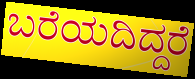
ಬರೆಯದಿದ್ದರೆ